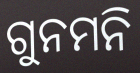
ଗୁନମନି